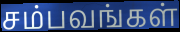
சம்பவங்கள்